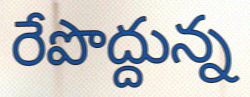
రేపొద్దున్న